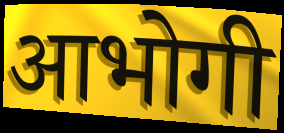
आभोगी